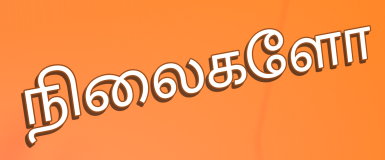
நிலைகளோ